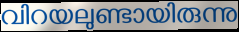
വിറയലുണ്ടായിരുന്നു